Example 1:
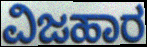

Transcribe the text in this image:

ವಿಜಹಾರ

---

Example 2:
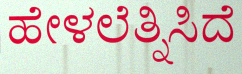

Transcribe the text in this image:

ಹೇಳಲೆತ್ನಿಸಿದೆ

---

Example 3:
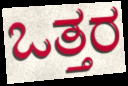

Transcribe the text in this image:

ಒತ್ತರ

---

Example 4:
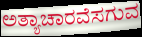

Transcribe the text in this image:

ಅತ್ಯಾಚಾರವೆಸಗುವ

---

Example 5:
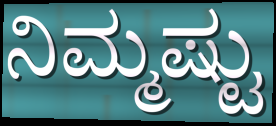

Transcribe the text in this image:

ನಿಮ್ಮಷ್ಟು